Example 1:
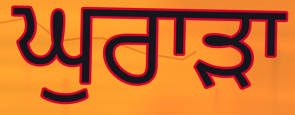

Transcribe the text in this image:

ਘੁਰਾੜਾ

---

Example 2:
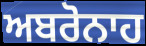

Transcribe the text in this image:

ਅਬਰੋਨਾਹ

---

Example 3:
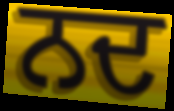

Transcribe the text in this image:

ਨਦ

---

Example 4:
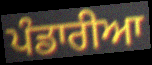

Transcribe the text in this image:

ਪੰਡਾਰੀਆ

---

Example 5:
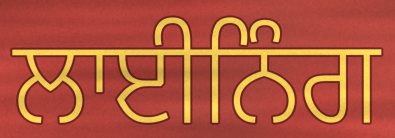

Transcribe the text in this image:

ਲਾਈਨਿੰਗ